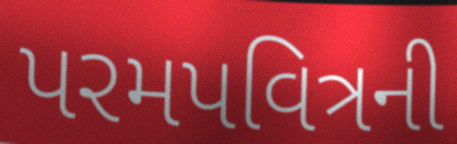
પરમપવિત્રની